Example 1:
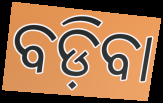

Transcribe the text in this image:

ବଡ଼ିବା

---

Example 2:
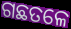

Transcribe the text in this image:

ଗଛତଳେ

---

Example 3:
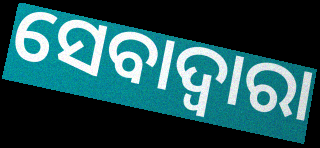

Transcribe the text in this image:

ସେବାଦ୍ବାରା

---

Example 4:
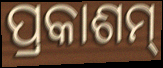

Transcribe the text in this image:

ପ୍ରକାଶମ୍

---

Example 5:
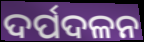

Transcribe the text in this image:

ଦର୍ପଦଳନ